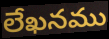
లేఖనము